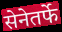
सेनेतर्फे